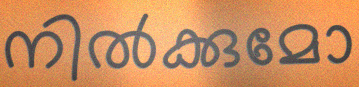
നിൽക്കുമോ